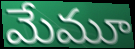
మేమూ